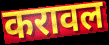
करावल